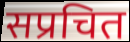
सप्रचित